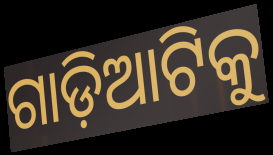
ଗାଡ଼ିଆଟିକୁ